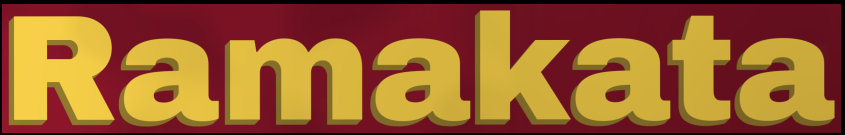
Ramakata